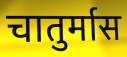
चातुर्मास